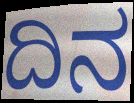
ದಿನ